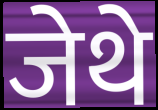
जेथे